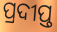
ପ୍ରଦୀପ୍ତ